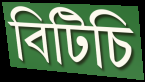
বিটিচি